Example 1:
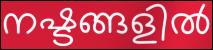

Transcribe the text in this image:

നഷ്ടങ്ങളിൽ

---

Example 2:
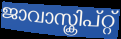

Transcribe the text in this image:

ജാവാസ്ക്രിപ്റ്റ്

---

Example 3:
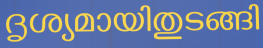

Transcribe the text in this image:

ദൃശ്യമായിതുടങ്ങി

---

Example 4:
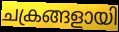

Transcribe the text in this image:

ചക്രങ്ങളായി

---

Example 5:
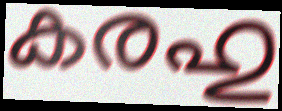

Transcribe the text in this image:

കരഹു